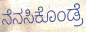
ನೆನಸಿಕೊಂಡ್ರೆ